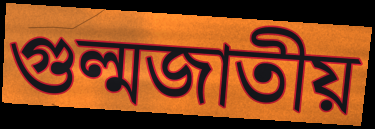
গুল্মজাতীয়